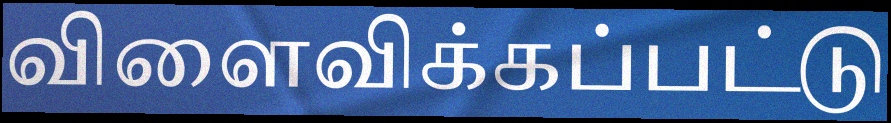
விளைவிக்கப்பட்டு